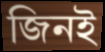
জিনই